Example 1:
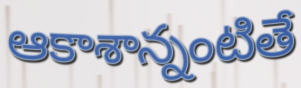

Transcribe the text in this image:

ఆకాశాన్నంటితే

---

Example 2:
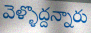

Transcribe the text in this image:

వెళ్ళొద్దన్నారు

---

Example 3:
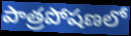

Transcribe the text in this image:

పాత్రపోషణలో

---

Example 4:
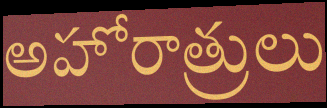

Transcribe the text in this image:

అహోరాత్రులు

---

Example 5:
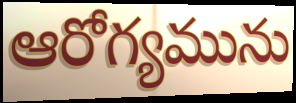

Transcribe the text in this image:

ఆరోగ్యమును